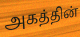
அகத்தின்